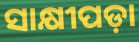
ସାକ୍ଷୀପଡ଼ା